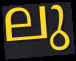
ലു